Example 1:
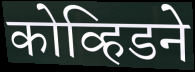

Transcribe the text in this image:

कोव्हिडने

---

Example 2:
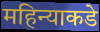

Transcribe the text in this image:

महिन्याकडे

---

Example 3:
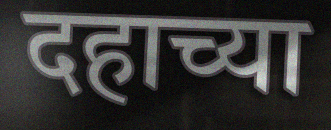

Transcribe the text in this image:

दहाच्या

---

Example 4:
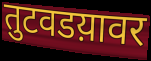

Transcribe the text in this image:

तुटवडय़ावर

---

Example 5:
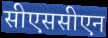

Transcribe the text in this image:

सीएससीएन